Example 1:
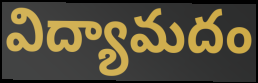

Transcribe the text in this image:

విద్యామదం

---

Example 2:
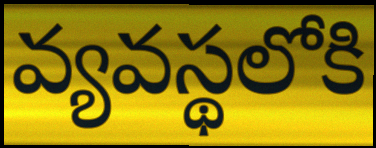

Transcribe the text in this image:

వ్యవస్థలోకి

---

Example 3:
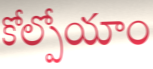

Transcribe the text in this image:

కోల్పోయాం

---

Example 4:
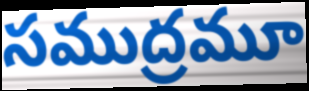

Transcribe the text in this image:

సముద్రమూ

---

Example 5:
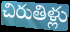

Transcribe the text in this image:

చిరుతిళ్లు